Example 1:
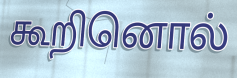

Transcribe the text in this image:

கூறினொல்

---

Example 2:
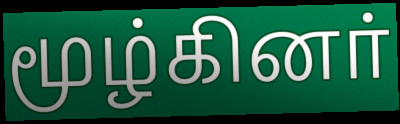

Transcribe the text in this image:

மூழ்கினர்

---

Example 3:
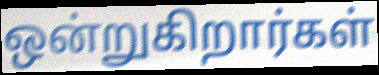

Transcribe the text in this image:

ஒன்றுகிறார்கள்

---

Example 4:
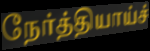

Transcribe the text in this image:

நேர்த்தியாய்ச்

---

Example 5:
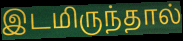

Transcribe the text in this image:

இடமிருந்தால்